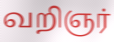
வறிஞர்